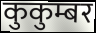
कुकुम्बर